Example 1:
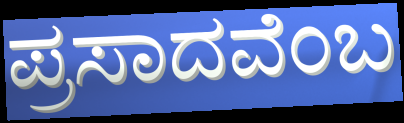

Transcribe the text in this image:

ಪ್ರಸಾದವೆಂಬ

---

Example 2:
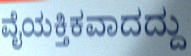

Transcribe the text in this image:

ವೈಯಕ್ತಿಕವಾದದ್ದು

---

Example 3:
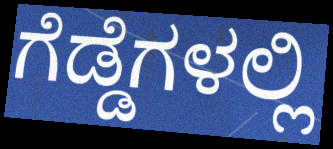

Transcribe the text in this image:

ಗೆಡ್ಡೆಗಳಲ್ಲಿ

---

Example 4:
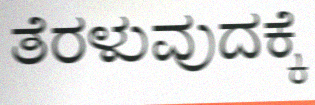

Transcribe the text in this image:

ತೆರಳುವುದಕ್ಕೆ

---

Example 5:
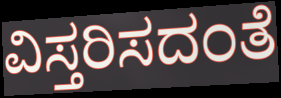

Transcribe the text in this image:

ವಿಸ್ತರಿಸದಂತೆ